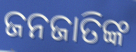
ଜନଜାତିଙ୍କ